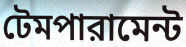
টেমপারামেন্ট